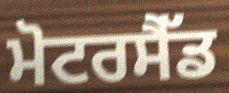
ਮੋਟਰਸੈੱਡ